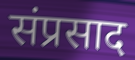
संप्रसाद